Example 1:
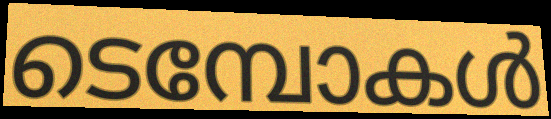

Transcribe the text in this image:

ടെമ്പോകൾ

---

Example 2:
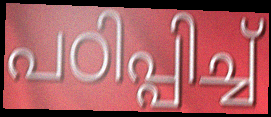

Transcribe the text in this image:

പഠിപ്പിച്ച്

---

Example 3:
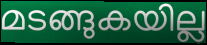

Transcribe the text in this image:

മടങ്ങുകയില്ല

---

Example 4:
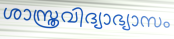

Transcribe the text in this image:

ശാസ്ത്രവിദ്യാഭ്യാസം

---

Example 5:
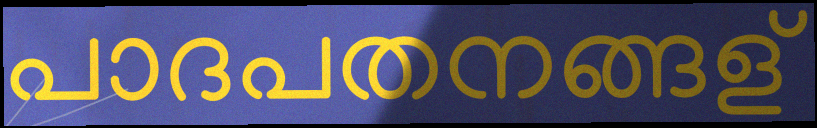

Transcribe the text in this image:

പാദപതനങ്ങള്